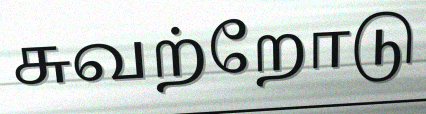
சுவற்றோடு